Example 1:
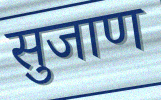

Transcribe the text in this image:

सुजाण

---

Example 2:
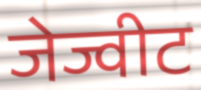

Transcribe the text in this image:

जेज्वीट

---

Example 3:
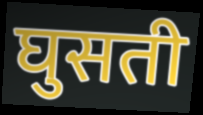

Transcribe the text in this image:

घुसती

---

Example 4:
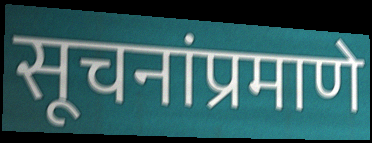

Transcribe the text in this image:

सूचनांप्रमाणे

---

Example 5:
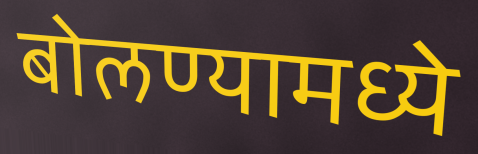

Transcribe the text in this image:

बोलण्यामध्ये